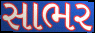
સાભર